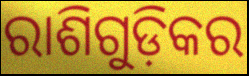
ରାଶିଗୁଡ଼ିକର